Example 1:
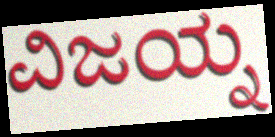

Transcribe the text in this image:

ವಿಜಯ್ನ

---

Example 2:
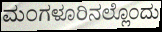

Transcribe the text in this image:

ಮಂಗಳೂರಿನಲ್ಲೊಂದು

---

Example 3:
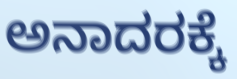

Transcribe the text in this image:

ಅನಾದರಕ್ಕೆ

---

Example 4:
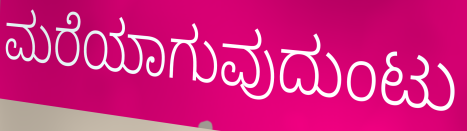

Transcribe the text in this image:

ಮರೆಯಾಗುವುದುಂಟು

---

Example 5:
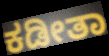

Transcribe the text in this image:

ಕಡೀತಾ